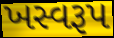
ખસ્વરૂપ